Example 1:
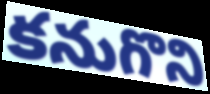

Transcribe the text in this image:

కనుగొని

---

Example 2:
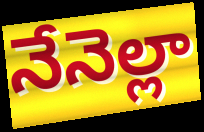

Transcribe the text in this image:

నేనెల్లా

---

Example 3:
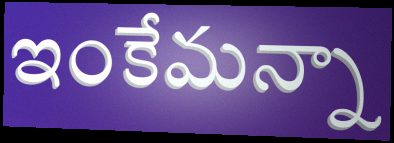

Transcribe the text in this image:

ఇంకేమన్నా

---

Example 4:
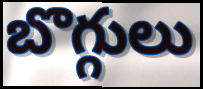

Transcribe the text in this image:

బొగ్గులు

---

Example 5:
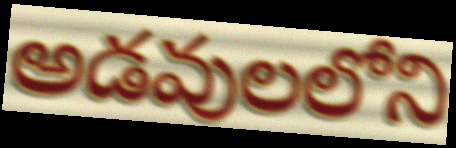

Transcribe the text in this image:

అడవులలోని